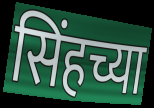
सिंहच्या